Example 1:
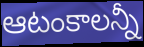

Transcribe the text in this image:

ఆటంకాలన్నీ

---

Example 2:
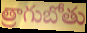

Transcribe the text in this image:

త్రాగుబోతు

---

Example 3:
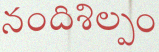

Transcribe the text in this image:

నందిశిల్పం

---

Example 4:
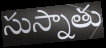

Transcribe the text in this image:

సుస్నాతు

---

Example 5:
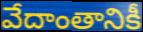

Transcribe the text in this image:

వేదాంతానికీ